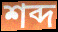
শব্দ